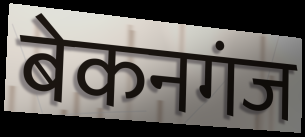
बेकनगंज